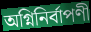
অগ্নিনির্বাপণী